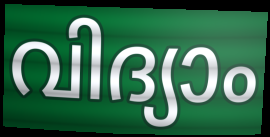
വിദ്യാം